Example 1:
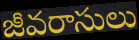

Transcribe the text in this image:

జీవరాసులు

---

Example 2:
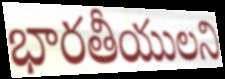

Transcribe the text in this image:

భారతీయులని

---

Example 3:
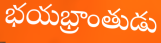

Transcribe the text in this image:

భయభ్రాంతుడు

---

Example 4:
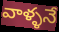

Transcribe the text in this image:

వాళ్ళనే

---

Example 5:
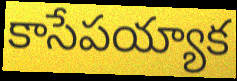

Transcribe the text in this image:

కాసేపయ్యాక